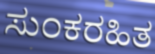
ಸುಂಕರಹಿತ